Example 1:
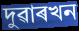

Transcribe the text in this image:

দুৱাৰখন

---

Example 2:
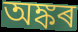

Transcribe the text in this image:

অঙ্কৰ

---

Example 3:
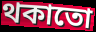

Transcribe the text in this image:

থকাতো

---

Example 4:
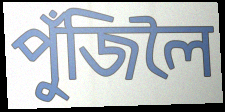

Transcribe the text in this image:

পুঁজিলৈ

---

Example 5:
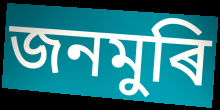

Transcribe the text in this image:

জনমুৰি